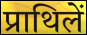
प्राथिलें